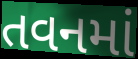
તવનમાં